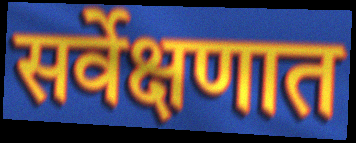
सर्वेक्षणात